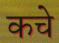
कचे